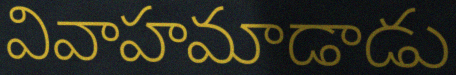
వివాహమాడాడు